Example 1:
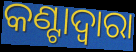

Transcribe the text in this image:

କଣ୍ଟାଦ୍ୱାରା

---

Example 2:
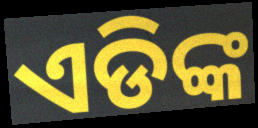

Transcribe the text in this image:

ଏଡିଙ୍କ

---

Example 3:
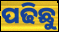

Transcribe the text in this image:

ପଢିଛୁ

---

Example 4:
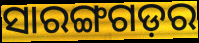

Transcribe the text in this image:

ସାରଙ୍ଗଗଡ଼ର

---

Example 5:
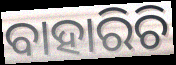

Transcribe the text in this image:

ବାହାରିଚି